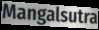
Mangalsutra